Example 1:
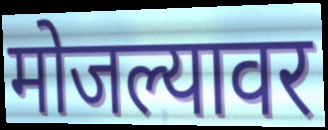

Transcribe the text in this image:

मोजल्यावर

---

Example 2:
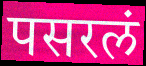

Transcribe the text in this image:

पसरलं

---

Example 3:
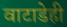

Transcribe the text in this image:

वाटाडेही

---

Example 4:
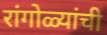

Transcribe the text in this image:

रांगोळ्यांची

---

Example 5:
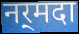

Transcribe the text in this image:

नर्मदा